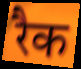
रैक